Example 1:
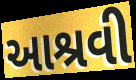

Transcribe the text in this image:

આશ્રવી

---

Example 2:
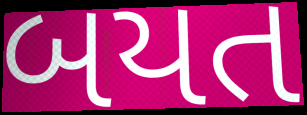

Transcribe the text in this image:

બયત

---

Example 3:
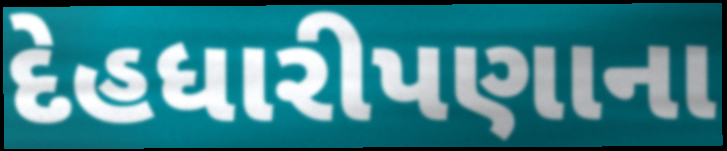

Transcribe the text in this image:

દેહધારીપણાના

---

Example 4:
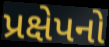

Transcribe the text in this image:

પ્રક્ષેપનો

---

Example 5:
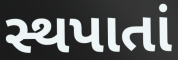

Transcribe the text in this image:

સ્થપાતાં